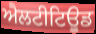
ਐਲਟੀਟਿਊਡ